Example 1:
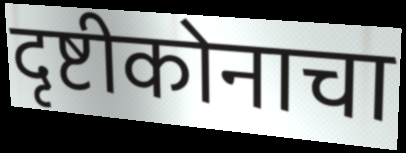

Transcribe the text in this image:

दृष्टीकोनाचा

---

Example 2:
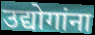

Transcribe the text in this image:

उद्योगांना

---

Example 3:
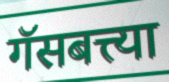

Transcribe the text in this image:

गॅसबत्त्या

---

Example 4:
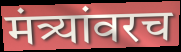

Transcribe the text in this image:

मंत्र्यांवरच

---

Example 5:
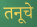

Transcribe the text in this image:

तनूचे